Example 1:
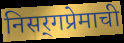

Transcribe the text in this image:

निसर्गप्रेमाची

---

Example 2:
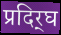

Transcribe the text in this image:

प्रदिर्घ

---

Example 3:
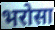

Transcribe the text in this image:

भरोसा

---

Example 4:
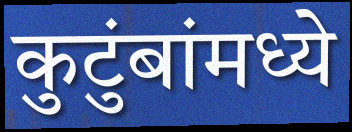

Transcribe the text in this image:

कुटुंबांमध्ये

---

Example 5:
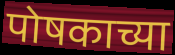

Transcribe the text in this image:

पोषकाच्या